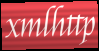
xmlhttp